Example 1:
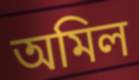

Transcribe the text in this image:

অমিল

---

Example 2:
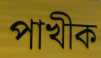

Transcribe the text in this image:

পাখীক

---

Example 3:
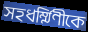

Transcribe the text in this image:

সহধর্ম্মিণীকে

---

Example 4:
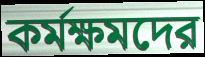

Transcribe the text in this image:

কর্মক্ষমদের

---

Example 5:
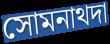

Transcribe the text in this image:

সোমনাথদা